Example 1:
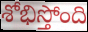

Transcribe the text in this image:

శోభిస్తోంది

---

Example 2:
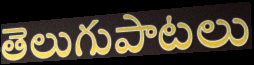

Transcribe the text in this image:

తెలుగుపాటలు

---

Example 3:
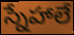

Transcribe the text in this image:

స్నేహాలే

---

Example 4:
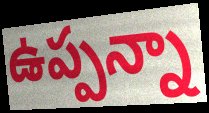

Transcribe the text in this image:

ఉప్పన్నా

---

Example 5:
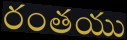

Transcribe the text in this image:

రంతయు